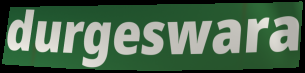
durgeswara